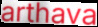
arthava